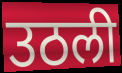
उठली